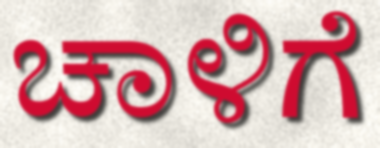
ಚಾಳಿಗೆ